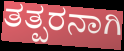
ತತ್ಪರನಾಗಿ